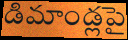
డిమాండ్లపై